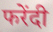
फरेंदी